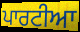
ਪਾਰਟੀਆ